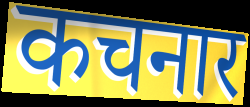
कचनार